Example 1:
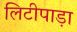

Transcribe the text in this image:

लिटीपाड़ा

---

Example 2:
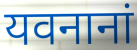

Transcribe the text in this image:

यवनानां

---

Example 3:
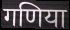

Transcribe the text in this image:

गणिया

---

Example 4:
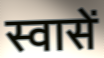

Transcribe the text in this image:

स्वासें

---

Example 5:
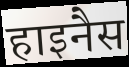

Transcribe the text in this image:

हाइनैस